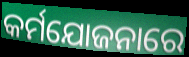
କର୍ମଯୋଜନାରେ